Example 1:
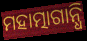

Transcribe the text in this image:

ମହାତ୍ମାଗାନ୍ଧି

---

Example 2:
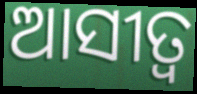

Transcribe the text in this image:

ଆସୀତ୍ବ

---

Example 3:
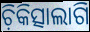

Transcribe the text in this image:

ଚ଼ିକିତ୍ସାଲାଗି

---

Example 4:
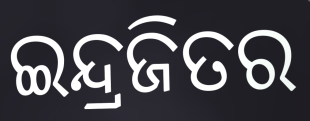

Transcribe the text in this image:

ଇନ୍ଦ୍ରଜିତର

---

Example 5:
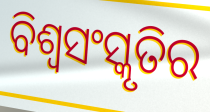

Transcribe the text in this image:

ବିଶ୍ୱସଂସ୍କୃତିର